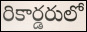
రికార్డరులో